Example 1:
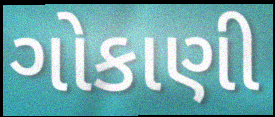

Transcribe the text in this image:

ગોકાણી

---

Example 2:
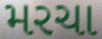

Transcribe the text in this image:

મરચા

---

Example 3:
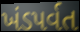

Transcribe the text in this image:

ખંડપર્વત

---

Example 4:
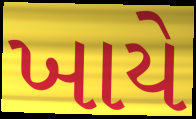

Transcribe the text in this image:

ખાયે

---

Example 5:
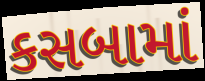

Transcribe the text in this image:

કસબામાં